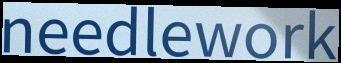
needlework